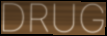
DRUG